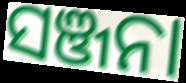
ସଞ୍ଜନା